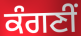
ਕੰਗਣੀਂ